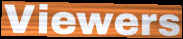
Viewers